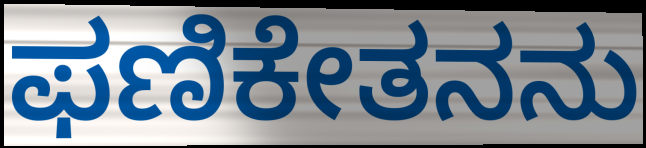
ಫಣಿಕೇತನನು